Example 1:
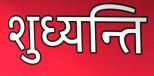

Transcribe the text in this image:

शुध्यन्ति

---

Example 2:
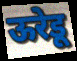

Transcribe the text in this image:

ऊरेडू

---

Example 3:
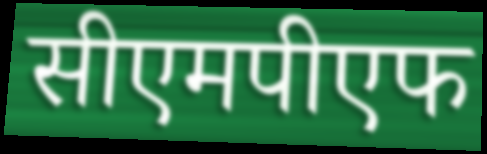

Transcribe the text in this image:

सीएमपीएफ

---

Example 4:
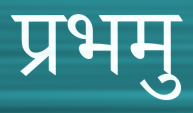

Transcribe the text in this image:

प्रभमु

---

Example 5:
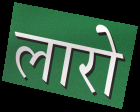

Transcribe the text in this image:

लारो